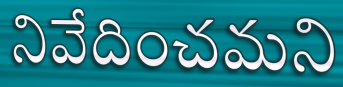
నివేదించమని